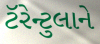
ટૅરેન્ટુલાને